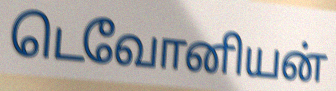
டெவோனியன்